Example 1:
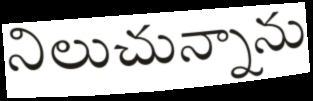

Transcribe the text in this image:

నిలుచున్నాను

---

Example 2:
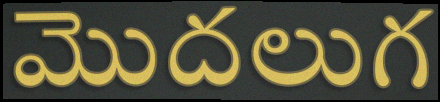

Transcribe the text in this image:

మొదలుగ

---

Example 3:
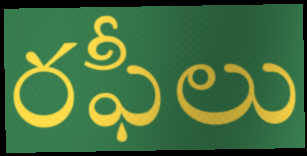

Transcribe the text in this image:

రఫీలు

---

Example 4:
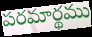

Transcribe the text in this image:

పరమార్థము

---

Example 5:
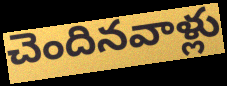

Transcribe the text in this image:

చెందినవాళ్లు